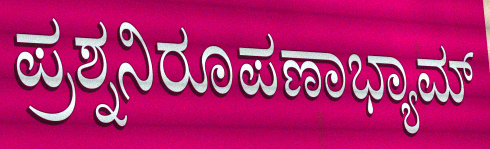
ಪ್ರಶ್ನನಿರೂಪಣಾಭ್ಯಾಮ್